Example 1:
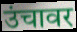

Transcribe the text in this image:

उंचावर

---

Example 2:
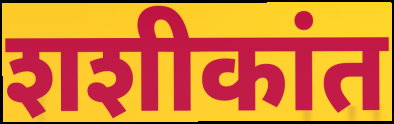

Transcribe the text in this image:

शशीकांत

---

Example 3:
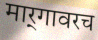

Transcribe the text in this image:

मार्गावरच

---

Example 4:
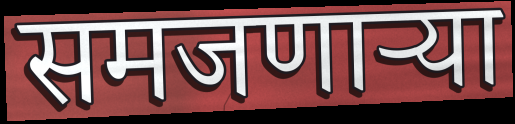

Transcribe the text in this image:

समजणाऱ्या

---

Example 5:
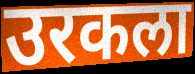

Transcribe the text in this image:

उरकला